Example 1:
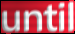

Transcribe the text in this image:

until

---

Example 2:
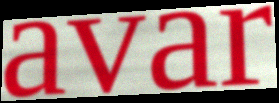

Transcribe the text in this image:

avar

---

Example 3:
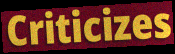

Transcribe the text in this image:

Criticizes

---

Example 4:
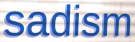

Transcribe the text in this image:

sadism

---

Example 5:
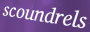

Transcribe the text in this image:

scoundrels